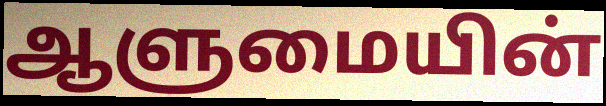
ஆளுமையின்